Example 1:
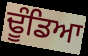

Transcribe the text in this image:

ਢੂੰਡਿਆ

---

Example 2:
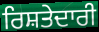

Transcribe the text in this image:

ਰਿਸ਼ਤੇਦਾਰੀ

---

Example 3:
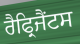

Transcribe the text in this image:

ਰੈਫ੍ਰਿਜੈਂਟਸ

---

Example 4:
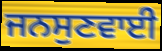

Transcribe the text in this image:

ਜਨਸੁਣਵਾਈ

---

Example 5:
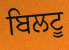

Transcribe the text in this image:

ਬਿਲਟੂ